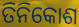
ତିନିକୋଶ